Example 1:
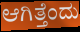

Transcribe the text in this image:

ಆಗಿತ್ತೆಂದು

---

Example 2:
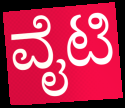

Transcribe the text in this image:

ವೈಟಿ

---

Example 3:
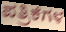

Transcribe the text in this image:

ಪತ್ರಿಕೆಗಳ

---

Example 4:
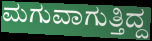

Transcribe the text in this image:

ಮಗುವಾಗುತ್ತಿದ್ದ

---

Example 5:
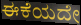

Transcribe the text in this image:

ಈಕೆಯದೇ